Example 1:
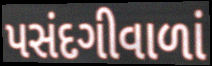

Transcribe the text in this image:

પસંદગીવાળાં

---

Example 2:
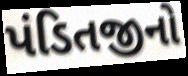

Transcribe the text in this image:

પંડિતજીનો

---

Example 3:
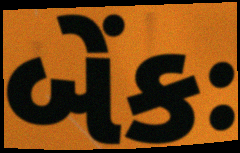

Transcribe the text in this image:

બેંકઃ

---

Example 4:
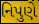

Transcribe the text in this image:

નિપુણે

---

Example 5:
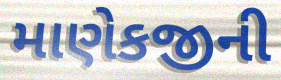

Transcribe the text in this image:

માણેકજીની